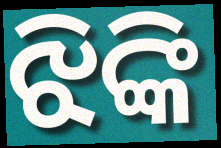
ଝିଙ୍କି